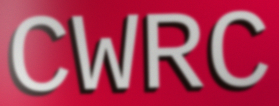
CWRC